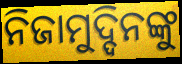
ନିଜାମୁଦ୍ଦିନଙ୍କୁ